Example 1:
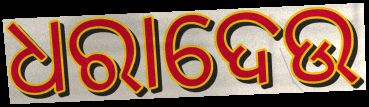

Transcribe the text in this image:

ଧରାଦେଉ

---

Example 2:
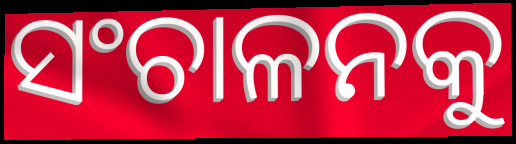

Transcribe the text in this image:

ସଂଚାଳନକୁ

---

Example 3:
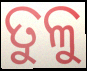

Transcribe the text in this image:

ତୁଳୁ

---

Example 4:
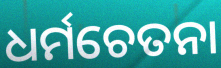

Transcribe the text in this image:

ଧର୍ମଚେତନା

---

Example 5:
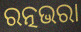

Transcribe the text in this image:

ରତ୍ନଭରା